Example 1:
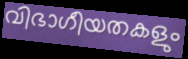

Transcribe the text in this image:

വിഭാഗീയതകളും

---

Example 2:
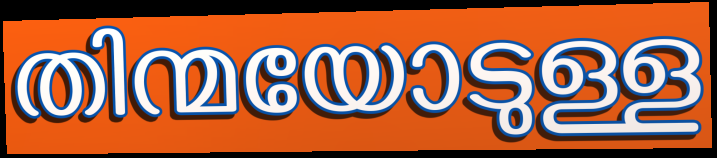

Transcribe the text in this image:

തിന്മയോടുള്ള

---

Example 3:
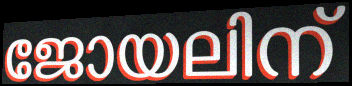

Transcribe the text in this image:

ജോയലിന്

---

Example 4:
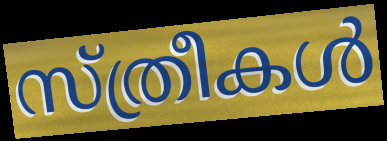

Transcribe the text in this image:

സ്ത്രീകൾ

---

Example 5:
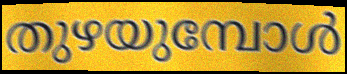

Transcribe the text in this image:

തുഴയുമ്പോൾ